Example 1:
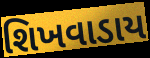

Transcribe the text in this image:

શિખવાડાય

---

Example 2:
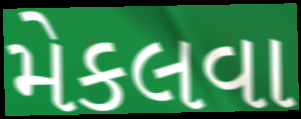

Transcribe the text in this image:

મેકલવા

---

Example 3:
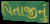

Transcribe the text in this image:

પિતાજીનું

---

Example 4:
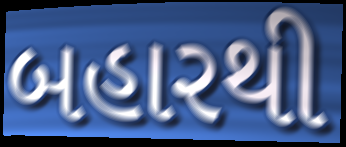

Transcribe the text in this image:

બહારથી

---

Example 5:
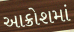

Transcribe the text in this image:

આક્રોશમાં